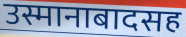
उस्मानाबादसह